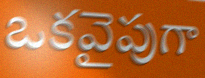
ఒకవైపుగా